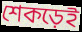
শেকড়েই